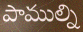
పాముల్ని